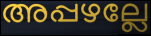
അപ്പഴല്ലേ